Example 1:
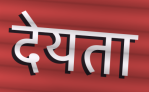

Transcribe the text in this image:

देयता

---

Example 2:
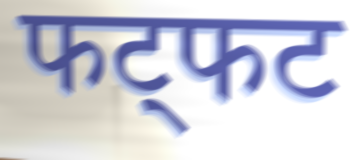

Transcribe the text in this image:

फट्फट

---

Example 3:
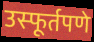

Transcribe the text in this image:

उस्फूर्तपणे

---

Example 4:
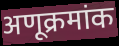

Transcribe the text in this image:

अणूक्रमांक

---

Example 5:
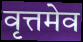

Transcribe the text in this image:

वृत्तमेव